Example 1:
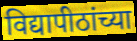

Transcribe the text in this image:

विद्यापीठांच्या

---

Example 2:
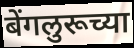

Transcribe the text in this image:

बेंगलुरूच्या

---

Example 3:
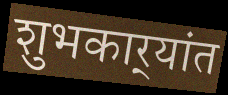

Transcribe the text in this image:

शुभकार्यांत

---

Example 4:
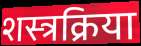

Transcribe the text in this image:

शस्त्रक्रिया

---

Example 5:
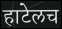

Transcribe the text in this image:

हाटेलच